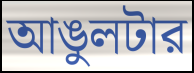
আঙুলটার